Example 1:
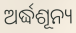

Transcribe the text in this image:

ଅର୍ଦ୍ଧଶୂନ୍ୟ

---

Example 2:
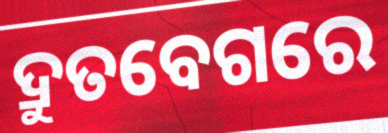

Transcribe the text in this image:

ଦ୍ରୁତବେଗରେ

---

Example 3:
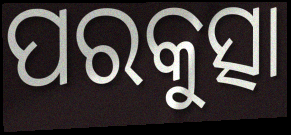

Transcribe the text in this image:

ପରକୁତ୍ସା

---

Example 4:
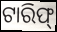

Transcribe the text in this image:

ଟାରିଫ୍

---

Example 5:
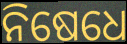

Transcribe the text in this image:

ନିଷେଧେ